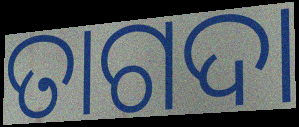
ତାଗଦା